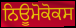
ਨਿਊਮੋਕੋਕਸ